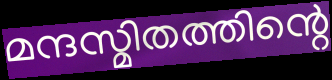
മന്ദസ്മിതത്തിന്റെ